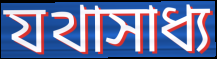
যথাসাধ্য